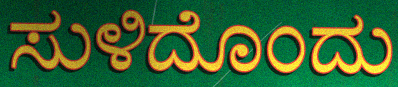
ಸುಳಿದೊಂದು